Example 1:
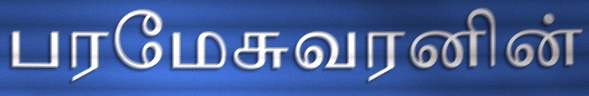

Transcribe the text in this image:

பரமேசுவரனின்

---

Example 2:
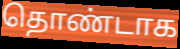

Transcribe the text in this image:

தொண்டாக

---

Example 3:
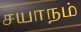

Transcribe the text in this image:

சயாநம்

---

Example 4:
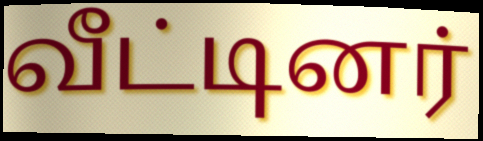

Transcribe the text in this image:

வீட்டினர்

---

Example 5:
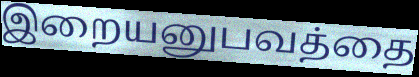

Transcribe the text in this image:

இறையனுபவத்தை